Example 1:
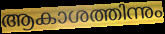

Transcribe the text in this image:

ആകാശത്തിന്നും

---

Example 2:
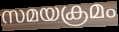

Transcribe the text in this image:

സമയക്രമം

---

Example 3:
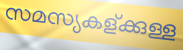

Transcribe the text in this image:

സമസ്യകള്ക്കുള്ള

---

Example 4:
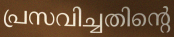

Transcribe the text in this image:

പ്രസവിച്ചതിന്റെ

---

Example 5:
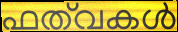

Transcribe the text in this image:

ഫത്‌വകൾ